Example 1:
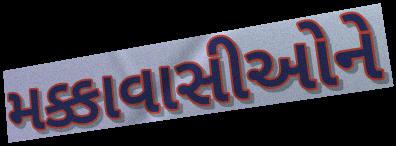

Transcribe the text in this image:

મક્કાવાસીઓને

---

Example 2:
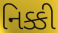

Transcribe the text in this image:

નિક્કી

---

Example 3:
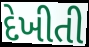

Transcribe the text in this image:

દેખીતી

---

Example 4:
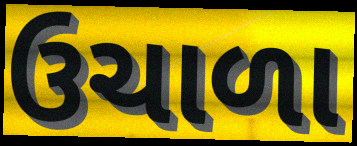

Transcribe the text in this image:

ઉચાળા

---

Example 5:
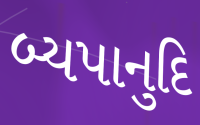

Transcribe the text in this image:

બ્યપાનુદિ